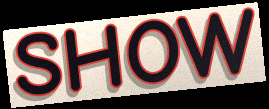
SHOW